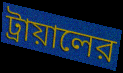
ট্রায়ালের